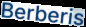
Berberis